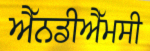
ਐੱਨਡੀਐੱਮਸੀ